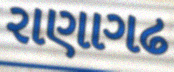
રાણાગઢ